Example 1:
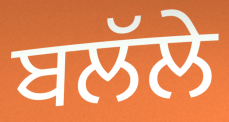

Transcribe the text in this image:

ਬਲੱਲੇ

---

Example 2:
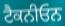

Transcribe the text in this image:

ਟੈਕਨੀਓਨ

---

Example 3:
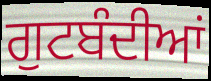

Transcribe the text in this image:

ਗੁਟਬੰਦੀਆਂ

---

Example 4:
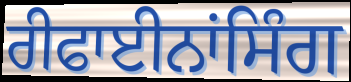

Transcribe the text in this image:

ਰੀਫਾਈਨਾਂਸਿੰਗ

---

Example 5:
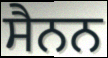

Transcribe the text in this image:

ਸੈਨਨ